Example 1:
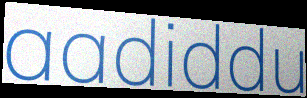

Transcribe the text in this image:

aadiddu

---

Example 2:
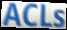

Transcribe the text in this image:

ACLs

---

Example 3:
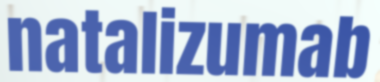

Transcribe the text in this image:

natalizumab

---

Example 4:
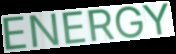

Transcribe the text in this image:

ENERGY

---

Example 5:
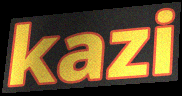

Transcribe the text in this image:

kazi